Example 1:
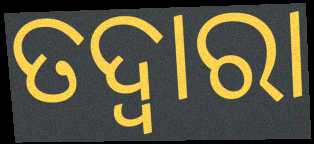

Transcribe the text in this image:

ତଦ୍ୱାରା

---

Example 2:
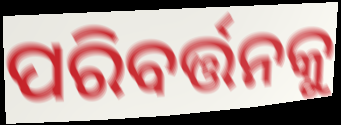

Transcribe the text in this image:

ପରିବର୍ତ୍ତନକୁ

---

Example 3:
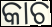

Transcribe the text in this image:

କାଚ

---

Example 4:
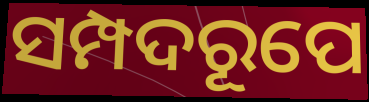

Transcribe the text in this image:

ସମ୍ପଦରୂପେ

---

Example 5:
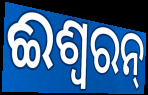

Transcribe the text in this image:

ଈଶ୍ୱରନ୍